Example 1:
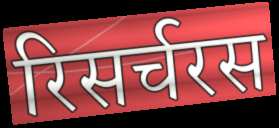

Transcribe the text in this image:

रिसर्चरस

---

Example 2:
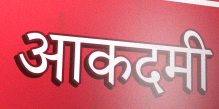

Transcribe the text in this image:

आकदमी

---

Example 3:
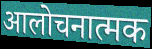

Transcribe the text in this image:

आलोचनात्मक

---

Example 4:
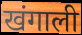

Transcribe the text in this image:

खंगाली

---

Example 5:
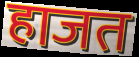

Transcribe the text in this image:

हाजत